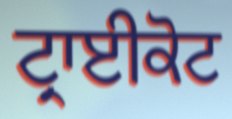
ਟ੍ਰਾਈਕੋਟ